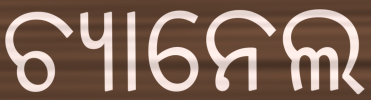
ଚ୍ୟାନେଲ